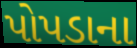
પોપડાના